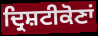
ਦ੍ਰਿਸ਼ਟੀਕੋਣਾਂ